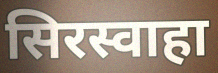
सिरस्वाहा